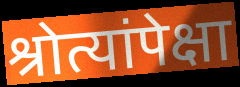
श्रोत्यांपेक्षा